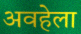
अवहेला